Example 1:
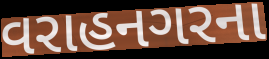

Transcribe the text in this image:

વરાહનગરના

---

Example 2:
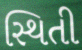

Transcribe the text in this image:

સ્થિતી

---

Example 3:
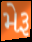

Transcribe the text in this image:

મેરૂ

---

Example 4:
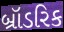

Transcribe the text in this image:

બ્રૉડરિક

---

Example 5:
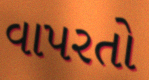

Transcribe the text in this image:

વાપરતો